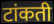
टांकती